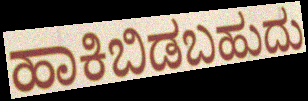
ಹಾಕಿಬಿಡಬಹುದು